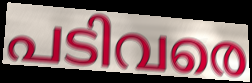
പടിവരെ